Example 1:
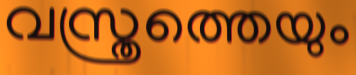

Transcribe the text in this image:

വസ്ത്രത്തെയും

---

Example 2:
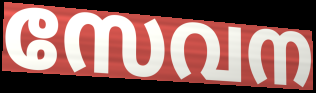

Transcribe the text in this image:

സേവന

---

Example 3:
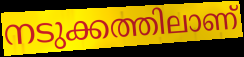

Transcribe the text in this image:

നടുക്കത്തിലാണ്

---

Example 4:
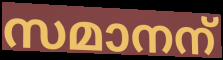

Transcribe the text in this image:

സമാനന്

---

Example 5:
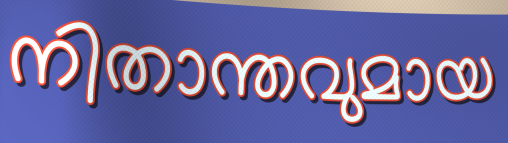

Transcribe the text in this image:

നിതാന്തവുമായ